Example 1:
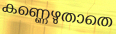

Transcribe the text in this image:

കണ്ണെഴുതാതെ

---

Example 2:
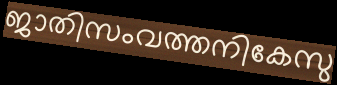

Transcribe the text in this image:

ജാതിസംവത്തനികേസു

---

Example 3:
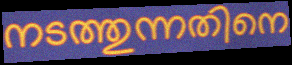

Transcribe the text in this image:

നടത്തുന്നതിനെ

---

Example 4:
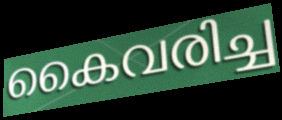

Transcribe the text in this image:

കൈവരിച്ച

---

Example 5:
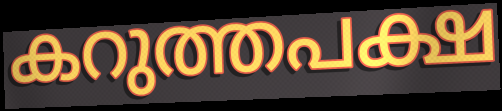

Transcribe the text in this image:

കറുത്തപക്ഷ